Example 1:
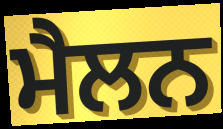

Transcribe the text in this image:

ਮੈਲਨ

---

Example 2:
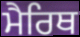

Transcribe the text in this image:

ਮੈਰਿਥ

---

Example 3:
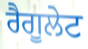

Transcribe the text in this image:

ਰੈਗੂਲੇਟ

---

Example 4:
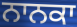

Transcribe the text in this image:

ਨਾਨਕਾ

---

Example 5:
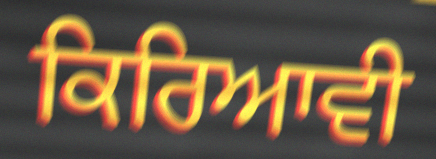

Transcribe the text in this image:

ਕਿਰਿਆਵੀ